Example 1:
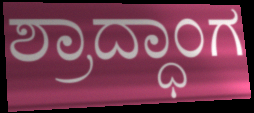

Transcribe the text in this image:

ಶ್ರಾದ್ಧಾಂಗ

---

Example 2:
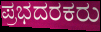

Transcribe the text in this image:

ಪ್ರಭದರಕರು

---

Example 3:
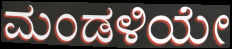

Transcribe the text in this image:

ಮಂಡಳಿಯೇ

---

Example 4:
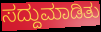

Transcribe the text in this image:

ಸದ್ದುಮಾಡಿತು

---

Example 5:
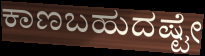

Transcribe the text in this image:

ಕಾಣಬಹುದಷ್ಟೇ